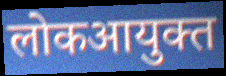
लोकआयुक्त